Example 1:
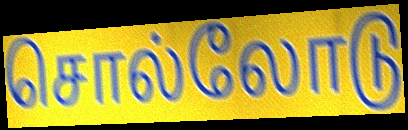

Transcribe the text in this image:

சொல்லோடு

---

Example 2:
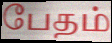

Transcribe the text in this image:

பேதம்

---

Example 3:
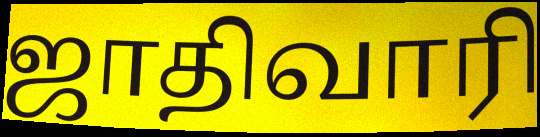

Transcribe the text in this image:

ஜாதிவாரி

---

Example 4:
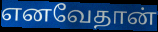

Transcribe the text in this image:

எனவேதான்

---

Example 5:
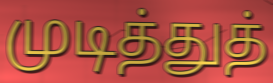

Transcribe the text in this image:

முடித்துத்